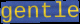
gentle